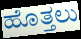
ಹೊತ್ತಲು